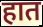
हात